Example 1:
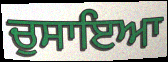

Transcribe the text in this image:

ਚੁਸਾਇਆ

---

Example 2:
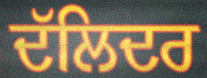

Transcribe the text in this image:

ਦੱਲਿਦਰ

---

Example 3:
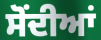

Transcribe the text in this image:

ਸੋਂਦੀਆਂ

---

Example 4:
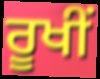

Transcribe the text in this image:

ਰੂਖੀਂ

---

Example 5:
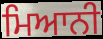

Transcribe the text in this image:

ਮਿਆਨੀ